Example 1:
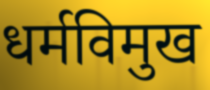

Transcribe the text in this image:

धर्मविमुख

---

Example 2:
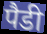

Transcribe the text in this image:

पैडी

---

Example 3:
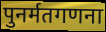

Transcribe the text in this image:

पुनर्मतगणना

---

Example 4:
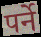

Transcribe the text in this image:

पर्ने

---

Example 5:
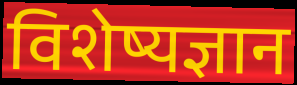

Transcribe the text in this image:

विशेष्यज्ञान